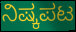
ನಿಷ್ಕಪಟ